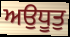
ਅਉਧੂਤੁ